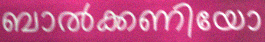
ബാൽക്കണിയോ